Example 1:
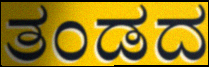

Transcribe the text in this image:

ತಂಡದ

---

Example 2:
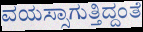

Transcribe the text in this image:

ವಯಸ್ಸಾಗುತ್ತಿದ್ದಂತೆ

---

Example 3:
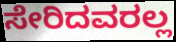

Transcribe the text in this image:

ಸೇರಿದವರಲ್ಲ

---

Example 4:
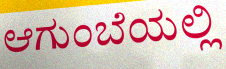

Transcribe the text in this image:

ಆಗುಂಬೆಯಲ್ಲಿ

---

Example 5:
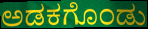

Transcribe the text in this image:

ಅಡಕಗೊಂಡು